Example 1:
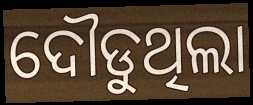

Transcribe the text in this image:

ଦୌଡୁଥିଲା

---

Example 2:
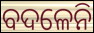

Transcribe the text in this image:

ବଦଳେନି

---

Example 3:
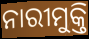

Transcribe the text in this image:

ନାରୀମୁକ୍ତି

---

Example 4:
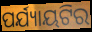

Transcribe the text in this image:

ପର୍ଯ୍ୟାୟଟିର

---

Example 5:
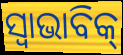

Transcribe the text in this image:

ସ୍ଵାଭାବିକ୍